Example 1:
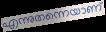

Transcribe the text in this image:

എന്നുതന്നെയാണ്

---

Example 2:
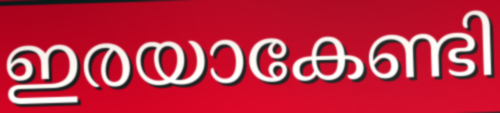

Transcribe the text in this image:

ഇരയാകേണ്ടി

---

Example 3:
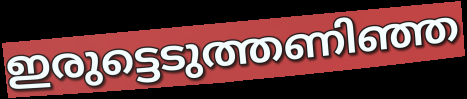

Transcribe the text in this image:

ഇരുട്ടെടുത്തണിഞ്ഞ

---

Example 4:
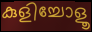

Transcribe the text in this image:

കുളിച്ചോളൂ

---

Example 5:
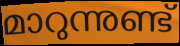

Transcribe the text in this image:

മാറുന്നുണ്ട്